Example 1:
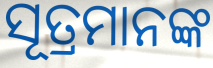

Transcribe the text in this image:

ସୂତ୍ରମାନଙ୍କ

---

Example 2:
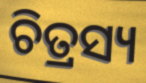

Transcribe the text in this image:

ଚିତ୍ରସ୍ୟ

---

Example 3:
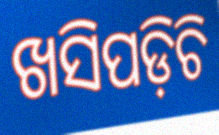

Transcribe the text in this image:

ଖସିପଡ଼ିଚି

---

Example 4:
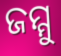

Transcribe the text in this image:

ଜମ୍ମୁ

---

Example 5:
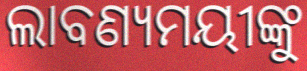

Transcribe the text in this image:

ଲାବଣ୍ୟମୟୀଙ୍କୁ